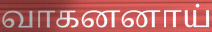
வாகனனாய்